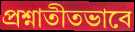
প্রশ্নাতীতভাবে